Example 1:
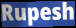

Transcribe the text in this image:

Rupesh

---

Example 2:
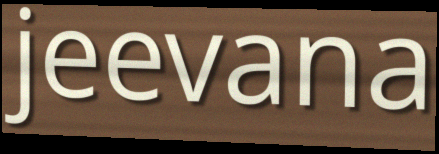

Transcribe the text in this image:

jeevana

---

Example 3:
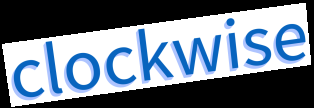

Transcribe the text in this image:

clockwise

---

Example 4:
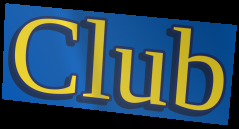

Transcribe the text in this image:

Club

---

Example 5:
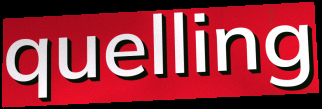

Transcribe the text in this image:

quelling